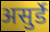
असुर्डे